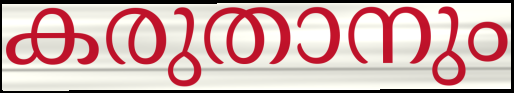
കരുതാനും